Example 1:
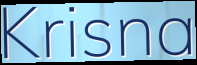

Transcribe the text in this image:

Krisna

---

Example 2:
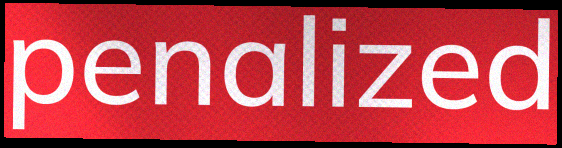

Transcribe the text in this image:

penalized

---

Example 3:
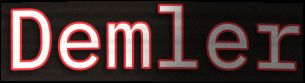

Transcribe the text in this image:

Demler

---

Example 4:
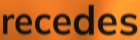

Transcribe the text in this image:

recedes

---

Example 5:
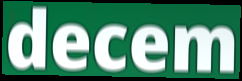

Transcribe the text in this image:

decem